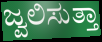
ಜ್ವಲಿಸುತ್ತಾ